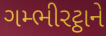
ગમ્ભીરટ્ઠાને